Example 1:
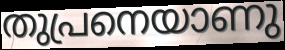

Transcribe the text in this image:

തുപ്രനെയാണു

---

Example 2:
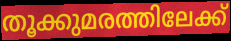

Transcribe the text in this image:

തൂക്കുമരത്തിലേക്ക്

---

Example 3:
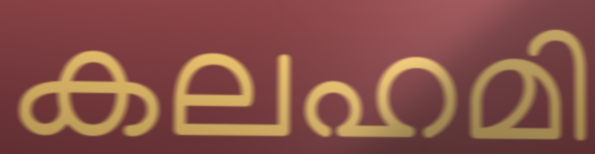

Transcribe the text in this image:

കലഹമി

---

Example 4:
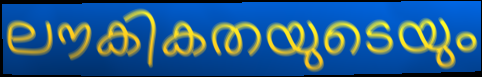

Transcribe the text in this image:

ലൗകികതയുടെയും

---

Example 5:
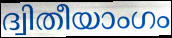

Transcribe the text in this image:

ദ്വിതീയാംഗം